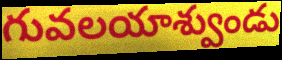
గువలయాశ్వుండు